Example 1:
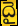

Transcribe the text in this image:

దై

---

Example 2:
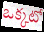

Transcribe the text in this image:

ఒక్కటో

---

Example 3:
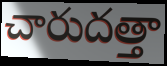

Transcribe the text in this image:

చారుదత్తా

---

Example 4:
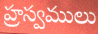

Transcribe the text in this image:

హ్రస్వములు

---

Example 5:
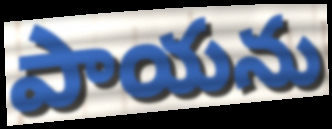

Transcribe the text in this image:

పాయను